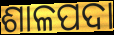
ଶାଳପଦା